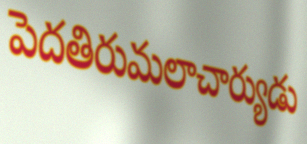
పెదతిరుమలాచార్యుడు